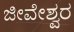
ಜೀವೇಶ್ವರ